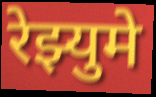
रेझ्युमे